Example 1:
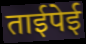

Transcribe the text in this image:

ताईपेई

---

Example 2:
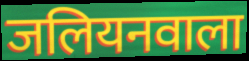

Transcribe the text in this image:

जलियनवाला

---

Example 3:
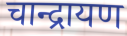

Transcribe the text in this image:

चान्द्रायण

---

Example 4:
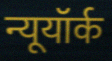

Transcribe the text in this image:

न्यूयॉर्क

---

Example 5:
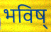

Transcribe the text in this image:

भविष्